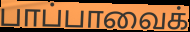
பாப்பாவைக்